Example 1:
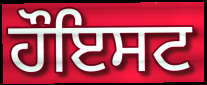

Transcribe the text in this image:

ਹੌਇਸਟ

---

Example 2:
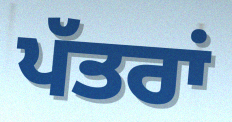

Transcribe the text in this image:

ਪੱਤਰਾਂ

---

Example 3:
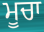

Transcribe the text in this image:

ਮੂਚਾ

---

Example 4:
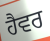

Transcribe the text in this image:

ਹੈਵਰ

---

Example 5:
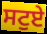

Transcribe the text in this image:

ਸਟੁਏ